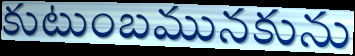
కుటుంబమునకును